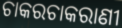
ଚାକରଚାକରାଣୀ